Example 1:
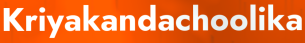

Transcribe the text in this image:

Kriyakandachoolika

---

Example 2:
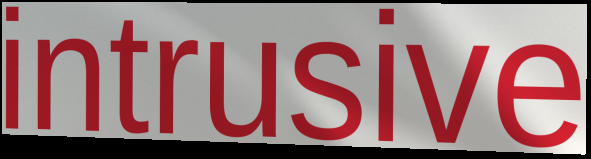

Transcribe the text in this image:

intrusive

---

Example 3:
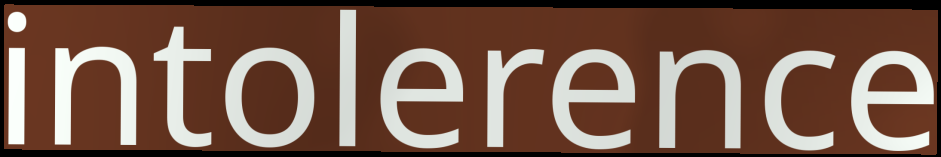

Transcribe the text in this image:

intolerence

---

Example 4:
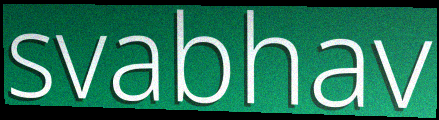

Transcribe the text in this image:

svabhav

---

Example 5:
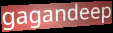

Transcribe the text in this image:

gagandeep